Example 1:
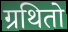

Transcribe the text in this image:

ग्रथितो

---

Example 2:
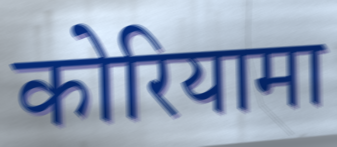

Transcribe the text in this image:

कोरियामा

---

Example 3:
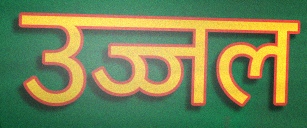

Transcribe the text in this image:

उज्जल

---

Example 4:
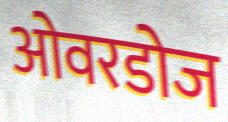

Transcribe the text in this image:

ओवरडोज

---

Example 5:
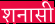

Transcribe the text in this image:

शनासी